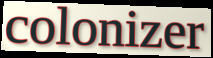
colonizer